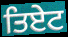
ਤਿਏਟ